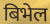
बिभेल